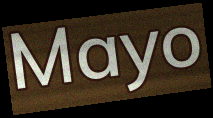
Mayo